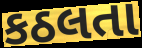
કઠલતા